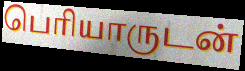
பெரியாருடன்